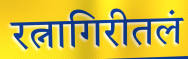
रत्नागिरीतलं